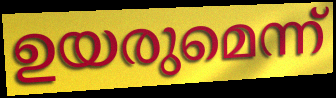
ഉയരുമെന്ന്